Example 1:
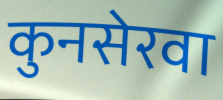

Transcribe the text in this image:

कुनसेरवा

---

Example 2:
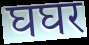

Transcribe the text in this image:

घघर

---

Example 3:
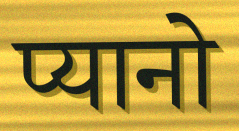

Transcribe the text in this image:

प्यानो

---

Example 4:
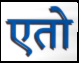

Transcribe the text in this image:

एतो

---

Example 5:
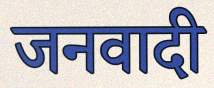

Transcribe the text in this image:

जनवादी